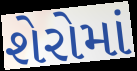
શેરોમાં